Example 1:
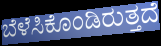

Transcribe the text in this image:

ಬೆಳೆಸಿಕೊಂಡಿರುತ್ತದೆ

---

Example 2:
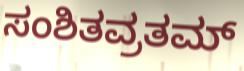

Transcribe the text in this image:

ಸಂಶಿತವ್ರತಮ್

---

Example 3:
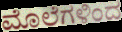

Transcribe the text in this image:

ಮೊಲೆಗಳಿಂದ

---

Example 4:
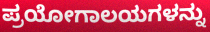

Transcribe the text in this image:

ಪ್ರಯೋಗಾಲಯಗಳನ್ನು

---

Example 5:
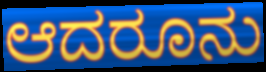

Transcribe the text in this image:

ಆದರೂನು